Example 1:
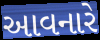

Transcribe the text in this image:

આવનારે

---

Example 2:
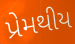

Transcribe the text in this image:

પ્રેમથીય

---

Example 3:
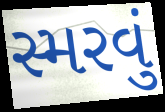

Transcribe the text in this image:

સ્મરવું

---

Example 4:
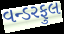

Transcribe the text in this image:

વન્ડરફુલ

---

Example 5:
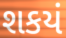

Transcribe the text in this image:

શકયં